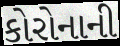
કોરોનાની